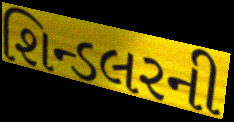
શિન્ડલરની